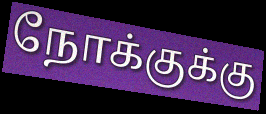
நோக்குக்கு